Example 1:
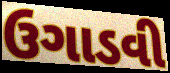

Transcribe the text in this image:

ઉગાડવી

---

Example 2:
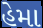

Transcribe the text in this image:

હેમા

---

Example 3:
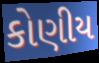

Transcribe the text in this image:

કોણીય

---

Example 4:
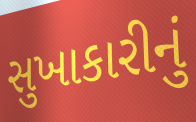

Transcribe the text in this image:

સુખાકારીનું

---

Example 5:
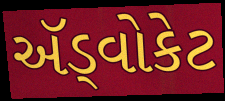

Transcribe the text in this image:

ઍડ્વોકેટ